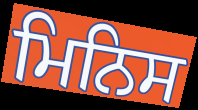
ਮਿਨਿਸ